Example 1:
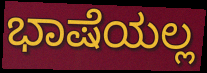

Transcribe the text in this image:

ಭಾಷೆಯಲ್ಲ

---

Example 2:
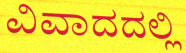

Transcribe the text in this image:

ವಿವಾದದಲ್ಲಿ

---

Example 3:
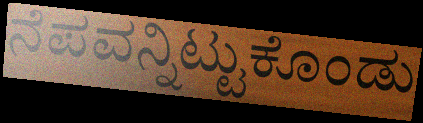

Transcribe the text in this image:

ನೆಪವನ್ನಿಟ್ಟುಕೊಂಡು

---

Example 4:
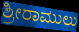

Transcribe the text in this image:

ಶ್ರೀರಾಮುಲು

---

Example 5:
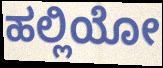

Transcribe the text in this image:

ಹಲ್ಲಿಯೋ